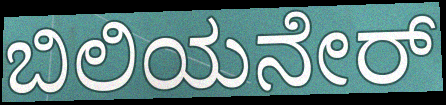
ಬಿಲಿಯನೇರ್